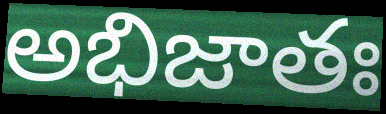
అభిజాతః